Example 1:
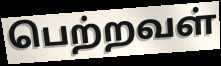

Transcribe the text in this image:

பெற்றவள்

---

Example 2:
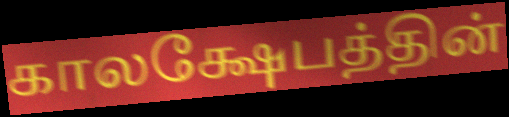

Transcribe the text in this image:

காலக்ஷேபத்தின்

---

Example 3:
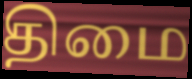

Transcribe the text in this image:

திமை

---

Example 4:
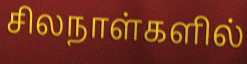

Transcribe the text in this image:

சிலநாள்களில்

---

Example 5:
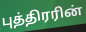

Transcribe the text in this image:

புத்திரரின்